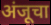
अंजूचा